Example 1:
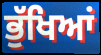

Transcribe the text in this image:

ਭੁੱਖਿਆਂ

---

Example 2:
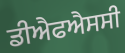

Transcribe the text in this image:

ਡੀਐਫਐਸਸੀ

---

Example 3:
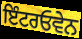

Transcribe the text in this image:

ਇੰਟਰਓਵੇਨ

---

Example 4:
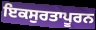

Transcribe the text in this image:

ਇਕਸੁਰਤਾਪੂਰਨ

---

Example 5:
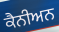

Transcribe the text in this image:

ਕੈਨੀਅਨ